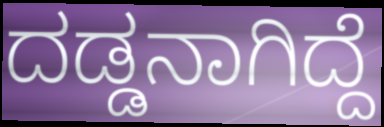
ದಡ್ಡನಾಗಿದ್ದೆ